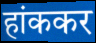
हांककर